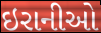
ઇરાનીઓ